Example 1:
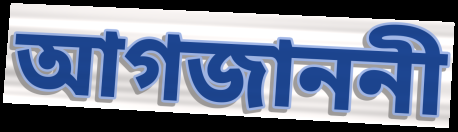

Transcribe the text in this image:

আগজাননী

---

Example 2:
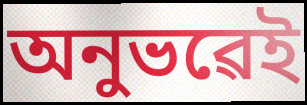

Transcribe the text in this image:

অনুভৱেই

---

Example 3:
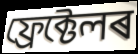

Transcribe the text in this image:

ফ্ৰেক্টেলৰ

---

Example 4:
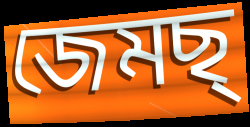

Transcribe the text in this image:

জেমছ্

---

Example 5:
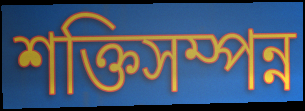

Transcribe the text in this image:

শক্তিসম্পন্ন